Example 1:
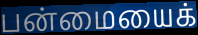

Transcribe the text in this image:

பன்மையைக்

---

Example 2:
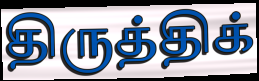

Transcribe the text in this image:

திருத்திக்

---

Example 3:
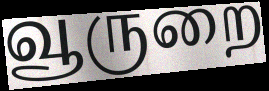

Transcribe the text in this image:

வூருறை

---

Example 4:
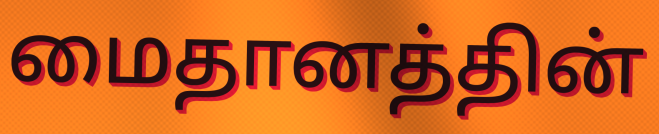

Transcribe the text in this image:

மைதானத்தின்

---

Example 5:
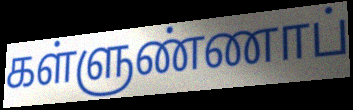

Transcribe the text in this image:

கள்ளுண்ணாப்